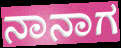
ನಾನಾಗ